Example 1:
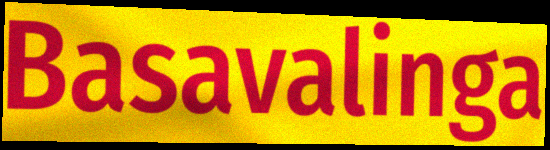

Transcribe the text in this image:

Basavalinga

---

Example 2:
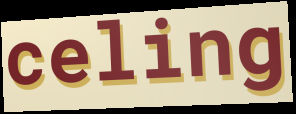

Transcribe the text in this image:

celing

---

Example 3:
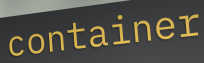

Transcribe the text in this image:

container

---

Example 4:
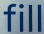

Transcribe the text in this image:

fill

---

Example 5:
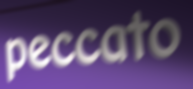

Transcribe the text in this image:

peccato